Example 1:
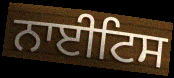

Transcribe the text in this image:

ਨਾਈਟਿਸ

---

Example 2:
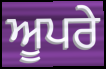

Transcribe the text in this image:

ਅੂਪਰੇ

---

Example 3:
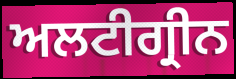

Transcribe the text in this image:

ਅਲਟੀਗ੍ਰੀਨ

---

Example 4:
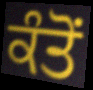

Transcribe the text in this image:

ਕੰਤੋਂ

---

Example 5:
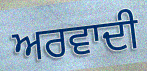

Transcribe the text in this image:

ਅਰਵਾਦੀ